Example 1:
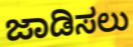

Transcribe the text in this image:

ಜಾಡಿಸಲು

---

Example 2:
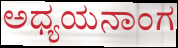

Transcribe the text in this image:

ಅಧ್ಯಯನಾಂಗ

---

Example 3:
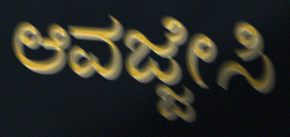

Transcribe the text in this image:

ಆವಜ್ಜೇಸಿ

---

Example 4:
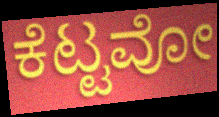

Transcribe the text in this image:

ಕೆಟ್ಟವೋ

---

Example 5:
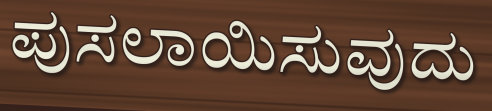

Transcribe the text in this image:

ಪುಸಲಾಯಿಸುವುದು